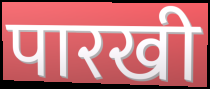
पारखी